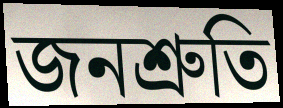
জনশ্ৰুতি